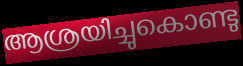
ആശ്രയിച്ചുകൊണ്ടു